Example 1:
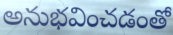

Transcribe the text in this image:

అనుభవించడంతో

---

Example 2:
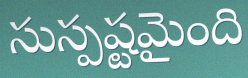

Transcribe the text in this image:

సుస్పష్టమైంది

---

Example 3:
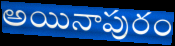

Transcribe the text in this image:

అయినాపురం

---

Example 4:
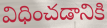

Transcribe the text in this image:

విధించడానికి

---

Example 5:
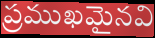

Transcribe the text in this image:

ప్రముఖమైనవి